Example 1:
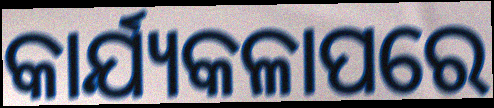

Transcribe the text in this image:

କାର୍ଯ୍ୟକଳାପରେ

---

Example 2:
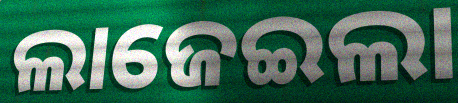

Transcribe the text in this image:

ଲାଜେଇଲା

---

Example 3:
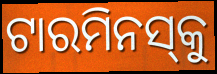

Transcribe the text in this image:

ଟାରମିନସ୍‌କୁ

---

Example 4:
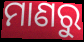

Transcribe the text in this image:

ମାଣରୁ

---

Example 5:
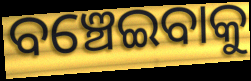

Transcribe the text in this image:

ବଞ୍ଚେଇବାକୁ